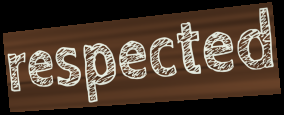
respected